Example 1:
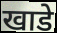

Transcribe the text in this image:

खाडे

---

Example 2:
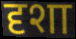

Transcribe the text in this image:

दृशा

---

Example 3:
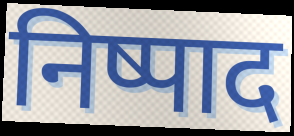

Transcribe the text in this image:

निष्पाद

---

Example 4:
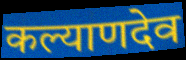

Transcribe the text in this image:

कल्याणदेव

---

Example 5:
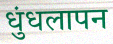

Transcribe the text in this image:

धुंधलापन